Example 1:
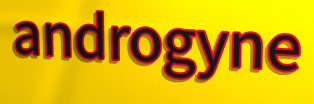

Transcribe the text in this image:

androgyne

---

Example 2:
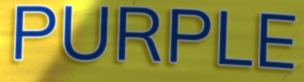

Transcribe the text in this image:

PURPLE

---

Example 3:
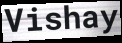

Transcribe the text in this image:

Vishay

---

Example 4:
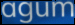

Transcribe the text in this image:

agum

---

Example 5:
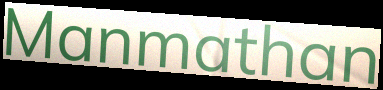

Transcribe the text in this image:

Manmathan